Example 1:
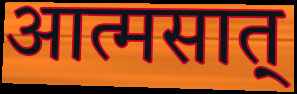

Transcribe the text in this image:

आत्मसात्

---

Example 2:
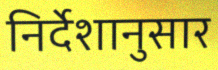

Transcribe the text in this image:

निर्देशानुसार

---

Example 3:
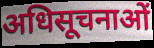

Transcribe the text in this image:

अधिसूचनाओं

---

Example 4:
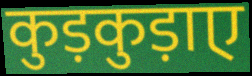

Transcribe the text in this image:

कुड़कुड़ाए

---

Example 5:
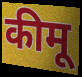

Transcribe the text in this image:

कीमू